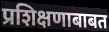
प्रशिक्षणाबाबत